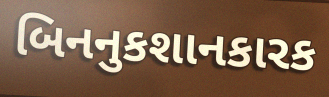
બિનનુકશાનકારક